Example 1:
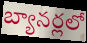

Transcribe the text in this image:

బ్యానర్లలో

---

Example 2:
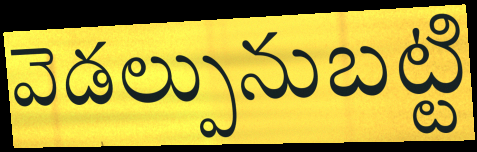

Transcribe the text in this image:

వెడల్పునుబట్టి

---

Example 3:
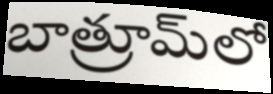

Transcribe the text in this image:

బాత్రూమ్‌లో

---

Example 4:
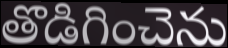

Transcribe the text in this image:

తొడిగించెను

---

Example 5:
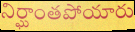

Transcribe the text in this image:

నిర్ఘాంతపోయారు